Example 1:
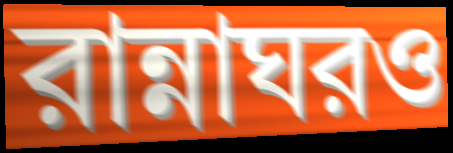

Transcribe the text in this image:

রান্নাঘরও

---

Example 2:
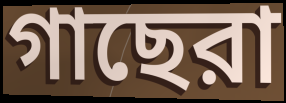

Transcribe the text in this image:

গাছেরা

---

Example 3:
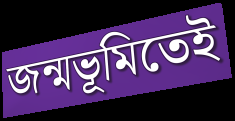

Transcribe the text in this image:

জন্মভূমিতেই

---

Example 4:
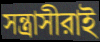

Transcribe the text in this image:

সন্ত্রাসীরাই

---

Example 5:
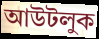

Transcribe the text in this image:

আউটলুক